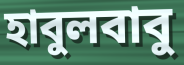
হাবুলবাবু